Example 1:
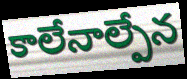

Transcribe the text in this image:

కాలేనాల్పేన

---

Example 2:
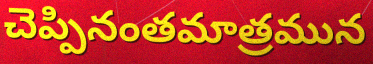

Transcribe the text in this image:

చెప్పినంతమాత్రమున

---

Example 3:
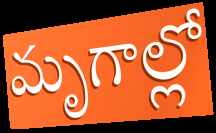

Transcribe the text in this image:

మృగాల్లో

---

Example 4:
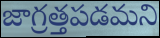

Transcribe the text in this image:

జాగ్రత్తపడమని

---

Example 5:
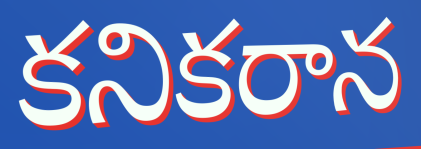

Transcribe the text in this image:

కనికరాన